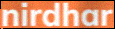
nirdhar